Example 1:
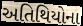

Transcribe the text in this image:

અતિથિયોના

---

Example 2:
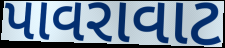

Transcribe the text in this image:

પાવરાવાટ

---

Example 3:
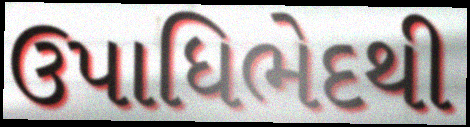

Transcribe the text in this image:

ઉપાધિભેદથી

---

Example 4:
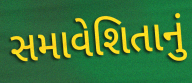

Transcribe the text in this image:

સમાવેશિતાનું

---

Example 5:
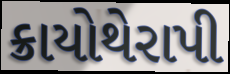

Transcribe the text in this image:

ક્રાયોથેરાપી